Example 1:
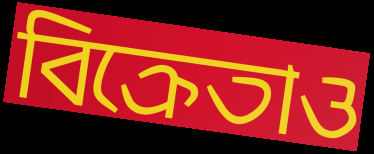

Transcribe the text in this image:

বিক্রেতাও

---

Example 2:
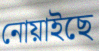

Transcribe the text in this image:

নোয়াইছে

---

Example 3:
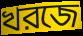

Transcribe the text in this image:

খরজে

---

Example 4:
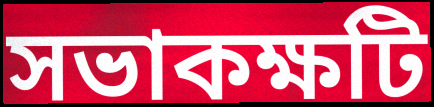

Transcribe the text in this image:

সভাকক্ষটি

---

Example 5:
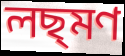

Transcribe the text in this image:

লছ্মণ